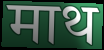
माथ